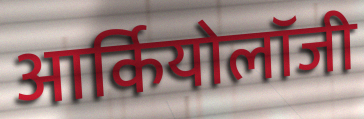
आर्कियोलॉजी